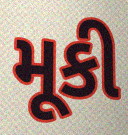
મૂકી